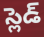
స్లెడ్